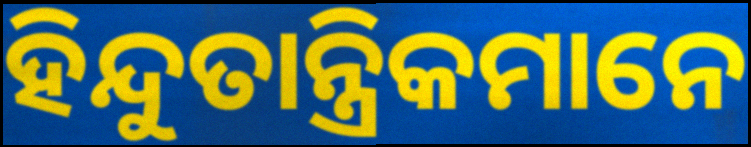
ହିନ୍ଦୁତାନ୍ତ୍ରିକମାନେ